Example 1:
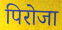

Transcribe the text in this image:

पिरोजा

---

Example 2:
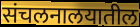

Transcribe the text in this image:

संचलनालयातील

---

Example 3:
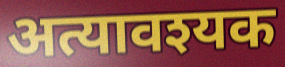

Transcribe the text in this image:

अत्यावश्यक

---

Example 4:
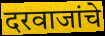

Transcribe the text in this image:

दरवाजांचे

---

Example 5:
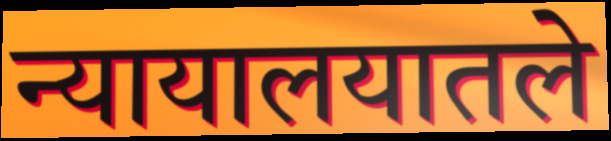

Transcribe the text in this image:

न्यायालयातले